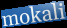
mokali